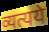
व्यत्यये